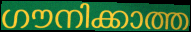
ഗൗനിക്കാത്ത